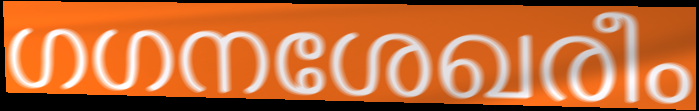
ഗഗനശേഖരീം